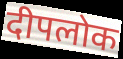
दीपलोक